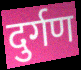
दुर्गण